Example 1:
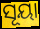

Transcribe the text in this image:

ସୂୟା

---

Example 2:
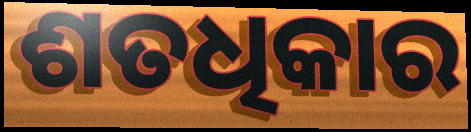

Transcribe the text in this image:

ଶତଧିକାର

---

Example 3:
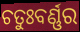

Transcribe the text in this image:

ଚତୁଃବର୍ଣ୍ଣର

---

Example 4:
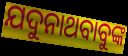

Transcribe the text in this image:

ଯଦୁନାଥବାବୁଙ୍କ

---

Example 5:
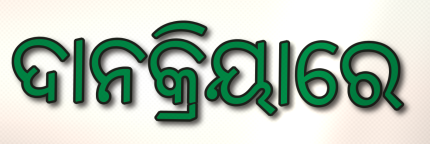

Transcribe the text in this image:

ଦାନକ୍ରିୟାରେ